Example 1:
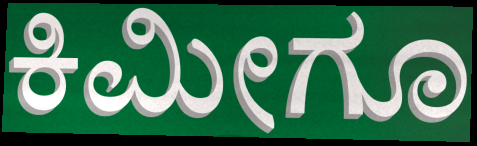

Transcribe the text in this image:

ಕಿಮೀಗೂ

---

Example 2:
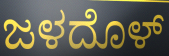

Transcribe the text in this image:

ಜಳದೊಳ್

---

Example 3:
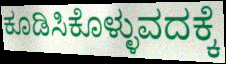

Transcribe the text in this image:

ಕೂಡಿಸಿಕೊಳ್ಳುವದಕ್ಕೆ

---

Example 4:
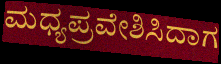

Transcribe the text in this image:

ಮಧ್ಯಪ್ರವೇಶಿಸಿದಾಗ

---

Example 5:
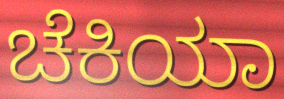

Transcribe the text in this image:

ಚೆಕಿಯಾ